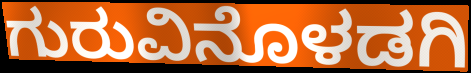
ಗುರುವಿನೊಳಡಗಿ